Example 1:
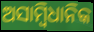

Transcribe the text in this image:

ଅସାମ୍ବିଧାନିକ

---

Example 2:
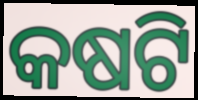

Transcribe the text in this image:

କଷଟି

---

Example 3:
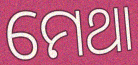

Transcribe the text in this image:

ମେଥା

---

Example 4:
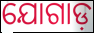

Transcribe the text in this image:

ଯୋଗାଡ଼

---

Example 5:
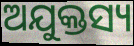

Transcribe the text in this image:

ଅଯୁକ୍ତସ୍ୟ